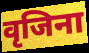
वृजिना